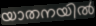
യാതനയിൽ